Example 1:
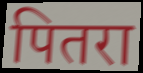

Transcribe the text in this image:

पितरा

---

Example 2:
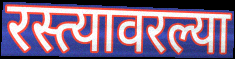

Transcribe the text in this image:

रस्त्यावरल्या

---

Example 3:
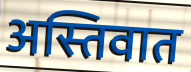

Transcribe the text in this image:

अस्तिवात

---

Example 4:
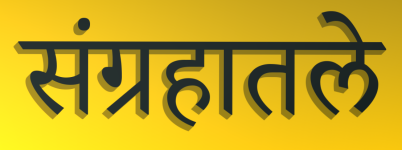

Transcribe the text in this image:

संग्रहातले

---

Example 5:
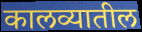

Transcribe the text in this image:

कालव्यातील